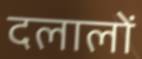
दलालों